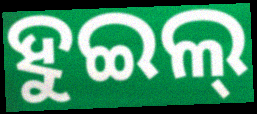
ହୁଇଲ୍